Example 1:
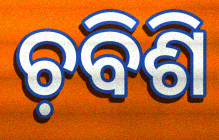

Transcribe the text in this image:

ଚ଼ବିଶି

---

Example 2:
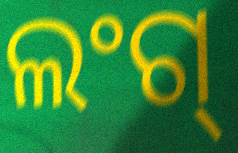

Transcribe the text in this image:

ଲଂଗ୍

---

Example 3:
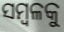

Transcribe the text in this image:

ସମ୍ବଳକୁ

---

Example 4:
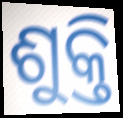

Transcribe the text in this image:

ଶୁକ୍ତି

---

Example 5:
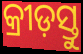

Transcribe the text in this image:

କ୍ରୀଡ଼ସ୍ତୁ